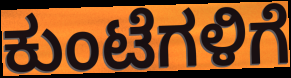
ಕುಂಟೆಗಳಿಗೆ